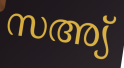
സഅ്യ്